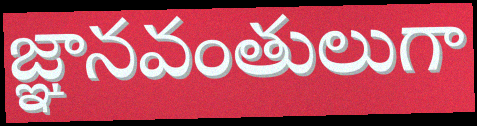
జ్ఞానవంతులుగా